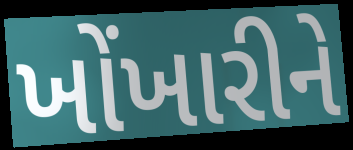
ખોંખારીને